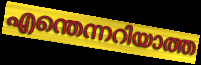
എന്തെന്നറിയാത്ത